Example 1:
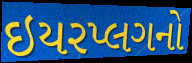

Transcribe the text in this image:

ઇયરપ્લગનો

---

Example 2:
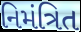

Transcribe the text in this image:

નિમંત્રિત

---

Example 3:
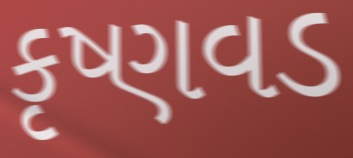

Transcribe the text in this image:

કૃષ્ણવડ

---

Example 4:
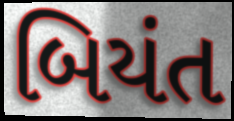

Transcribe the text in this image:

બિયંત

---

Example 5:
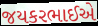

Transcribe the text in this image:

જયકરભાઈએ